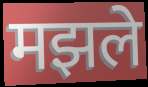
मझले